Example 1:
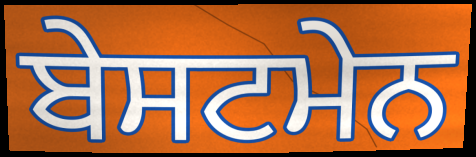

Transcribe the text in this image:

ਬੇਸਟਮੇਨ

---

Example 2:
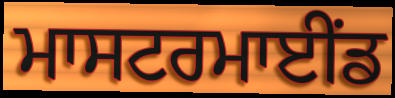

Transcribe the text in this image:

ਮਾਸਟਰਮਾਈੰਡ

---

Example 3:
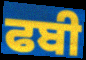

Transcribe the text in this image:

ਫਬੀ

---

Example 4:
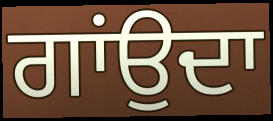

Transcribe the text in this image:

ਗਾਂਉਦਾ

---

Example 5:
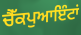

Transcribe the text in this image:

ਚੈੱਕਪੁਆਇੰਟਾਂ